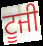
ਟੂਜੀ